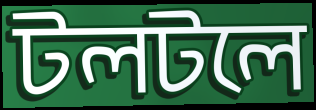
টলটলে